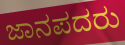
ಜಾನಪದರು